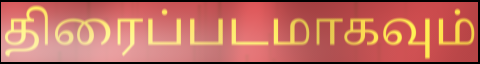
திரைப்படமாகவும்